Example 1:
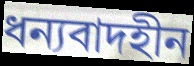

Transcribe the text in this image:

ধন্যবাদহীন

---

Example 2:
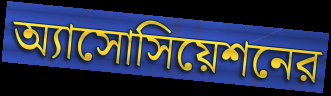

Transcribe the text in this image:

অ্যাসোসিয়েশনের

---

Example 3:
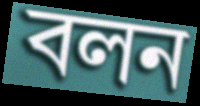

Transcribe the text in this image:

বলন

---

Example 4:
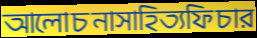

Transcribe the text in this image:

আলোচনাসাহিত্যফিচার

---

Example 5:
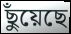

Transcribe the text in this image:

ছুঁয়েছে